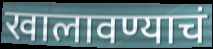
खालावण्याचं